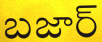
బజార్